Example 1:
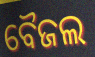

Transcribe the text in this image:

ବୈଜଲ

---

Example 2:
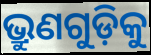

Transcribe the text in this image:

ଭ୍ରୁଣଗୁଡ଼ିକୁ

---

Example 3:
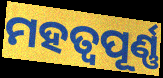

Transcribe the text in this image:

ମହତ୍ବପୂର୍ଣ୍ଣ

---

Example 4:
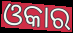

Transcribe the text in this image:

ଓକାର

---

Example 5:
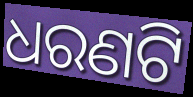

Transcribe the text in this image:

ଧରଣଟି